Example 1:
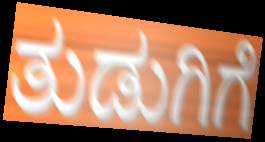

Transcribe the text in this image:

ತುಡುಗಿಗೆ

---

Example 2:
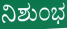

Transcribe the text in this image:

ನಿಶುಂಭ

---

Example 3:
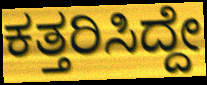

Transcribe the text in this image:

ಕತ್ತರಿಸಿದ್ದೇ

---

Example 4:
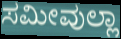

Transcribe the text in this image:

ಸಮೀವುಲ್ಲಾ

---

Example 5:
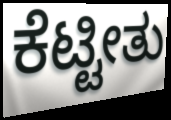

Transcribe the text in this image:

ಕೆಟ್ಟೀತು